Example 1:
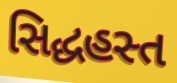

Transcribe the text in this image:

સિદ્ધહસ્ત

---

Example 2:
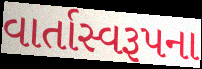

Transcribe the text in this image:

વાર્તાસ્વરૂપના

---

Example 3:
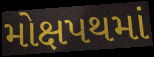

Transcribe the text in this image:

મોક્ષપથમાં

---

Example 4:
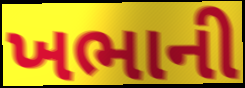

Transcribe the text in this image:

ખભાની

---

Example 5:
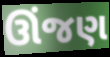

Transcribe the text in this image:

ઊંજણ